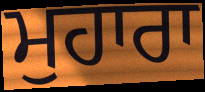
ਮੁਹਾਰਾ